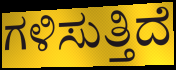
ಗಳಿಸುತ್ತಿದೆ